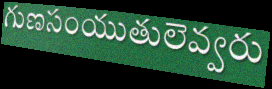
గుణసంయుతులెవ్వరు